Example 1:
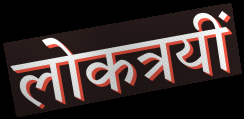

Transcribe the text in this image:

लोकत्रयीं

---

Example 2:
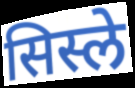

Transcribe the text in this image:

सिस्ले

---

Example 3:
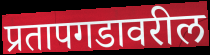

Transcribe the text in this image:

प्रतापगडावरील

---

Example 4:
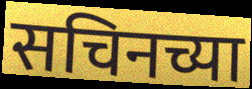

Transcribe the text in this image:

सचिनच्या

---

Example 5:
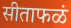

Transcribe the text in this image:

सीताफळं